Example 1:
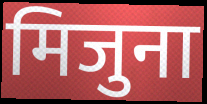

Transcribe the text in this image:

मिजुना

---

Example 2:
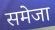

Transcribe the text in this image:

समेजा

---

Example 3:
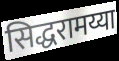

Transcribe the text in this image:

सिद्धरामय्या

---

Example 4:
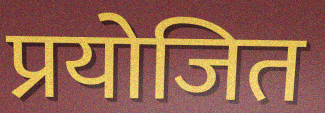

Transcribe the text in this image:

प्रयोजित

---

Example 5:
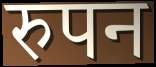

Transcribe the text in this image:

रुपन